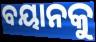
ବୟାନକୁ